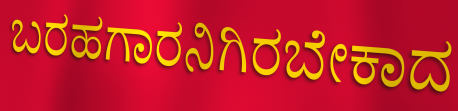
ಬರಹಗಾರನಿಗಿರಬೇಕಾದ